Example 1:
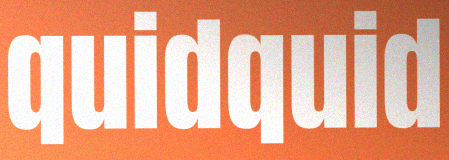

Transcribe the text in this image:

quidquid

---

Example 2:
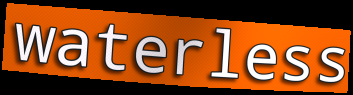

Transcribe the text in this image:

waterless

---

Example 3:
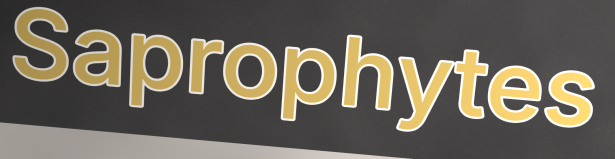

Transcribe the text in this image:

Saprophytes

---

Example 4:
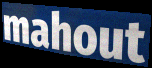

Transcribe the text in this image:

mahout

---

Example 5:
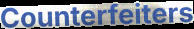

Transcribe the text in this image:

Counterfeiters